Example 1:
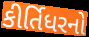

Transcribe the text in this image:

કીર્તિધરનો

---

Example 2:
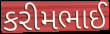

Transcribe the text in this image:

કરીમભાઈ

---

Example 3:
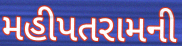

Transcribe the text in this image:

મહીપતરામની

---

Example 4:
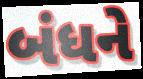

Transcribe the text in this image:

બંધને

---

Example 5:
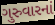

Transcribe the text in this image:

ગુરુવારનાં